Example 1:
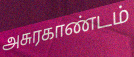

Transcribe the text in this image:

அசுரகாண்டம்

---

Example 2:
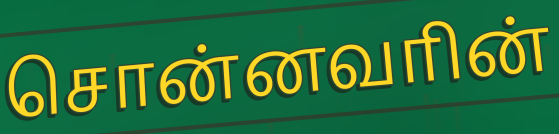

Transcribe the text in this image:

சொன்னவரின்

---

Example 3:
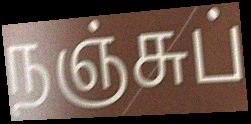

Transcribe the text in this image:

நஞ்சுப்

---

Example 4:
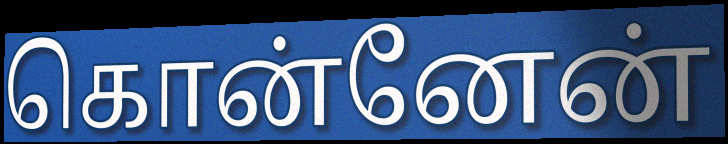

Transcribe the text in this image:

கொன்னேன்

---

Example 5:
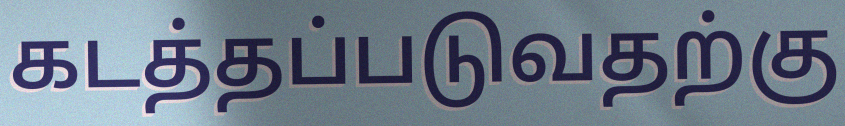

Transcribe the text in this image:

கடத்தப்படுவதற்கு